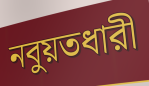
নবুয়তধারী